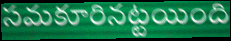
సమకూరినట్టయింది